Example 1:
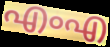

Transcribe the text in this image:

എംഎ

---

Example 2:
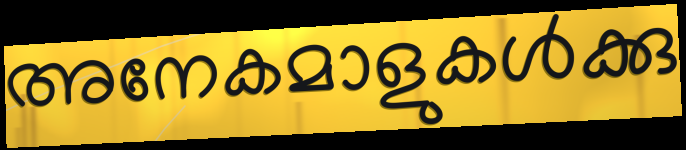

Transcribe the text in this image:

അനേകമാളുകൾക്കു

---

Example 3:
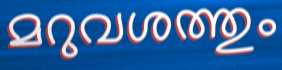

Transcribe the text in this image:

മറുവശത്തും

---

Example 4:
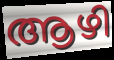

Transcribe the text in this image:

ആഴി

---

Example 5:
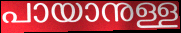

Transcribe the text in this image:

പായാനുള്ള